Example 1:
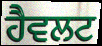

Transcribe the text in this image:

ਹੈਵਲਟ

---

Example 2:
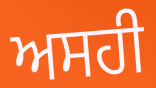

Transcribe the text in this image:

ਅਸਹੀ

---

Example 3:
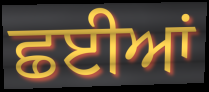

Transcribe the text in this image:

ਛਈਆਂ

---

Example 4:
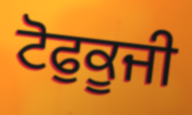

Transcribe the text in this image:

ਟੋਫੁਕੂਜੀ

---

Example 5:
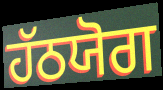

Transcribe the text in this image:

ਹੱਠਯੋਗ